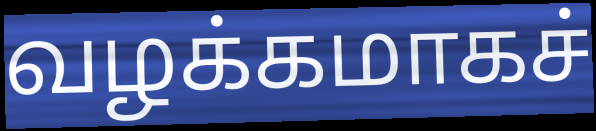
வழக்கமாகச்